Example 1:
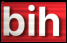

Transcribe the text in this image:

bih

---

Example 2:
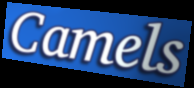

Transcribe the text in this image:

Camels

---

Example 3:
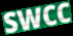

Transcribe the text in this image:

SWCC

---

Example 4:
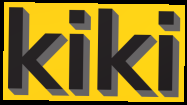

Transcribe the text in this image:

kiki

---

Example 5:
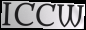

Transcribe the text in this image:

ICCW